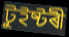
টুইষ্টৰী